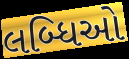
લબ્ધિઓ